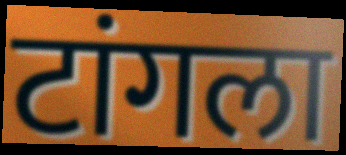
टांगला